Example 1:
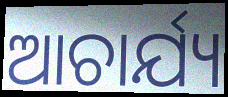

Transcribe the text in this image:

ଆଚାର୍ଯ୍ୟ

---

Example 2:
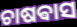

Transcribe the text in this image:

ଚାଷଵାସ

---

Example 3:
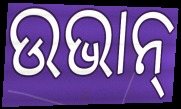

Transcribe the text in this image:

ଉଭାନ୍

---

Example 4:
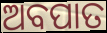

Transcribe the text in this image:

ଅବପାତ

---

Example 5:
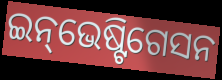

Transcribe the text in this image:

ଇନ୍‌ଭେଷ୍ଟିଗେସନ